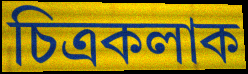
চিত্ৰকলাক